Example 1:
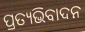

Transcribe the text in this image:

ପ୍ରତ୍ୟଭିବାଦନ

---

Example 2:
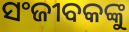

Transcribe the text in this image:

ସଂଜୀବକଙ୍କୁ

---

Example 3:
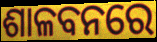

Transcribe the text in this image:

ଶାଳବନରେ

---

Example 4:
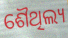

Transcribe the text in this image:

ଶୈଥିଲ୍ୟ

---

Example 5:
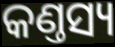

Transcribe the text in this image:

କଣ୍ତସ୍ୟ